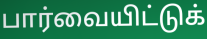
பார்வையிட்டுக்